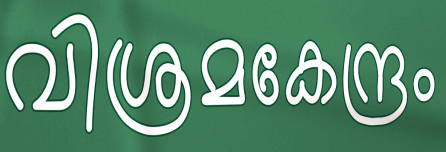
വിശ്രമകേന്ദ്രം